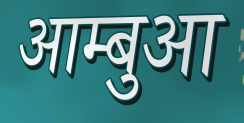
आम्बुआ